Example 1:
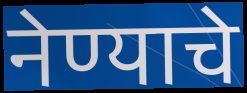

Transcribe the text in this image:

नेण्याचे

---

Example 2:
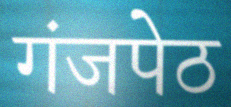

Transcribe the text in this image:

गंजपेठ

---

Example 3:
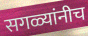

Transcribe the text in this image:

सगळ्यांनीच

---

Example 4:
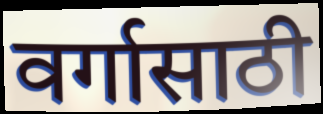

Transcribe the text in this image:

वर्गासाठी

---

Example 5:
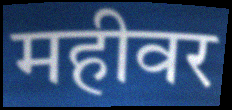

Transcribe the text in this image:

महीवर